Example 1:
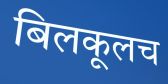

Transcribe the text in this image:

बिलकूलच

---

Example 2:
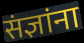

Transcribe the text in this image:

संज्ञांना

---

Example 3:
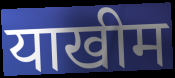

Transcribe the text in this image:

याखीम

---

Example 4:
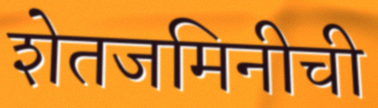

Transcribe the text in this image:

शेतजमिनीची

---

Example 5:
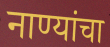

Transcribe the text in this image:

नाण्यांचा